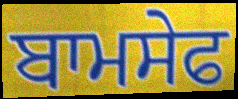
ਬਾਮਸੇਫ